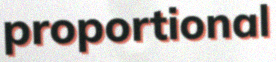
proportional